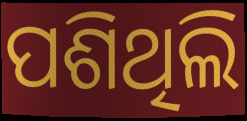
ପଶିଥିଲି